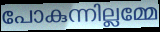
പോകുന്നില്ലമ്മേ